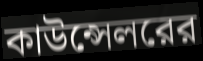
কাউন্সেলরের